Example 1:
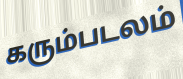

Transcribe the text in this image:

கரும்படலம்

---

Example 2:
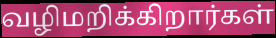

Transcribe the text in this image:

வழிமறிக்கிறார்கள்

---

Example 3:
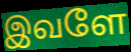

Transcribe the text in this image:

இவளே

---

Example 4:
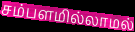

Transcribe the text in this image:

சம்பளமில்லாமல்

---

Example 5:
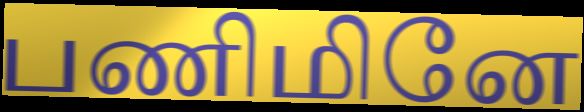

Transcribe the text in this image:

பணிமினே